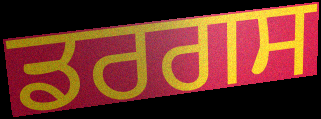
ਡਰਗਸ